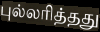
புல்லரித்தது